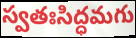
స్వతఃసిద్ధమగు